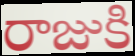
రాజుకి